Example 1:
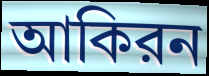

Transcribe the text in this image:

আকিরন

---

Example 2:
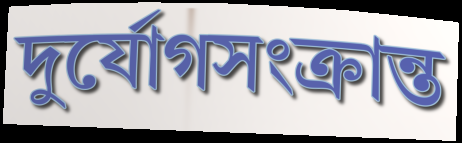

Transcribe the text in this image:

দুর্যোগসংক্রান্ত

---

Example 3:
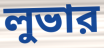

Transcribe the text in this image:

লুভার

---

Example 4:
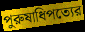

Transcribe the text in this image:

পুরুষাধিপত্যের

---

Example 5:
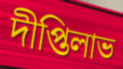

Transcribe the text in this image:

দীপ্তিলাভ